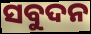
ସବୁଦନ